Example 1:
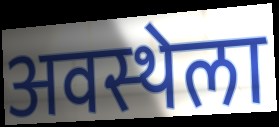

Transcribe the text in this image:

अवस्थेला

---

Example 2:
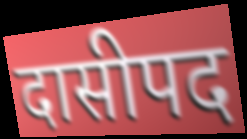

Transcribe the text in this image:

दासीपद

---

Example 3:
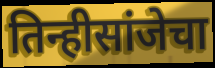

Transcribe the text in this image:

तिन्हीसांजेचा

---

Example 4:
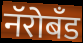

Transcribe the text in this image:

नॅरोबँड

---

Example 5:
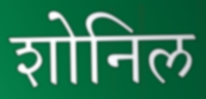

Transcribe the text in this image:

शोनिल